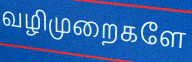
வழிமுறைகளே